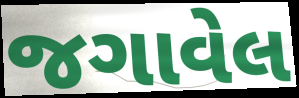
જગાવેલ